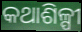
କଥାଶିଳ୍ପୀ